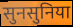
सुनसुनिया